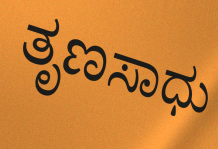
ತೃಣಸಾಧು